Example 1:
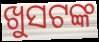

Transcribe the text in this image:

ଖୁସଟଙ୍କ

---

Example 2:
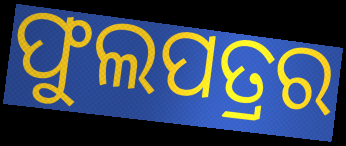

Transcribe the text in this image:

ଫୁଲପତ୍ରର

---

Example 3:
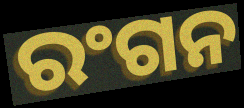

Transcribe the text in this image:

ରଂଗନ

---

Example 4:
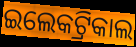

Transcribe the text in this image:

ଇଲେକଟ୍ରିକାଲ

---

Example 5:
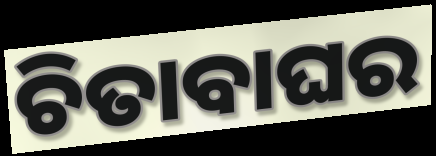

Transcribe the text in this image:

ଚିତାବାଘର